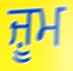
ਜ਼ੂਮ